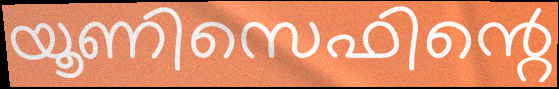
യൂണിസെഫിന്റെ